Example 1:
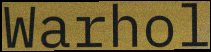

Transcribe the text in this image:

Warhol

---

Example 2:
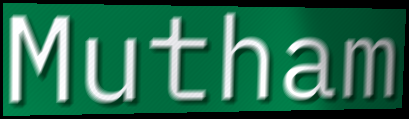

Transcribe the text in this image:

Mutham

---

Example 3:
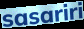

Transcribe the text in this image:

sasariri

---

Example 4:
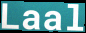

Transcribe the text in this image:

Laal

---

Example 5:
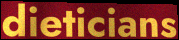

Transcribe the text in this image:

dieticians